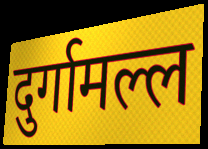
दुर्गामल्ल